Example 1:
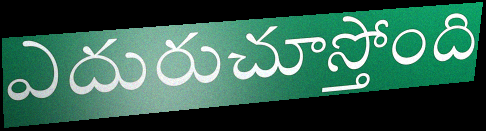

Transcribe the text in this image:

ఎదురుచూస్తోంది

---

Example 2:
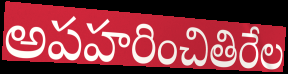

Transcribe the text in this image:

అపహరించితిరేల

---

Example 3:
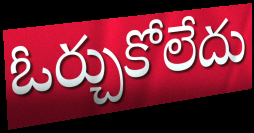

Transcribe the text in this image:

ఓర్చుకోలేదు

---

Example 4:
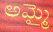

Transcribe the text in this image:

అమ్మై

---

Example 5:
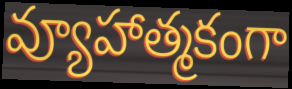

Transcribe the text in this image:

వ్యూహాత్మకంగా